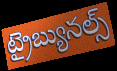
ట్రైబ్యునల్స్